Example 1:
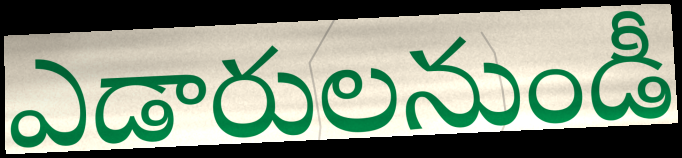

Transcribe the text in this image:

ఎడారులనుండీ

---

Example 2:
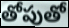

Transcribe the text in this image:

తోపుతో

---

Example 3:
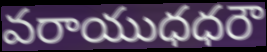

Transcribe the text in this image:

వరాయుధధరౌ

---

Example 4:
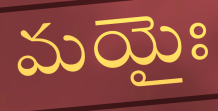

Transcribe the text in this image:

మయైః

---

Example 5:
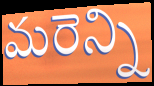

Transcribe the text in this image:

మరెన్ని